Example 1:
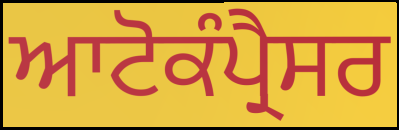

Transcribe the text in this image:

ਆਟੋਕੰਪ੍ਰੈਸਰ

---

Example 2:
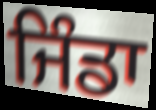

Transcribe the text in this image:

ਜਿੰਡਾ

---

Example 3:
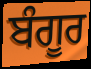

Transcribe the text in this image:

ਬੰਗੂਰ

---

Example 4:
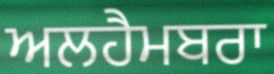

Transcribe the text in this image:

ਅਲਹੈਮਬਰਾ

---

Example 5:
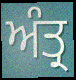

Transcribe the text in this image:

ਅੰਤ੍ਰ